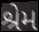
શ્રેમ